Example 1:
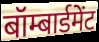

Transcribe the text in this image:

बॉम्बार्डमेंट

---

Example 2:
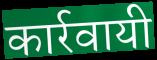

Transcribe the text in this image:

कार्रवायी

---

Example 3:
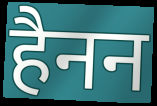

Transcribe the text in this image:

हैनन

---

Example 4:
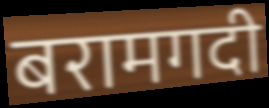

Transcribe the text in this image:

बरामगदी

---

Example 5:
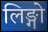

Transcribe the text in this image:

लिङ्गो